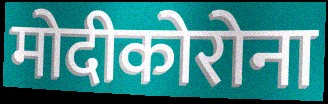
मोदीकोरोना